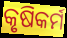
କୃଷିକର୍ମ